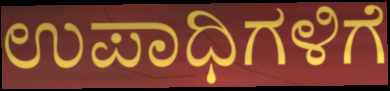
ಉಪಾಧಿಗಳಿಗೆ